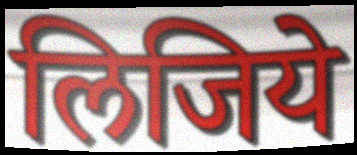
लिजिये